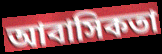
আবাসিকতা